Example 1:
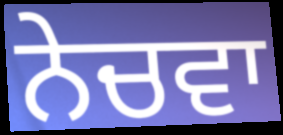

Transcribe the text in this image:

ਨੇਚਵਾ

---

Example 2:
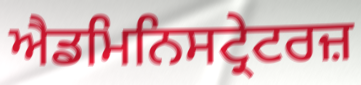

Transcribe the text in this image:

ਐਡਮਿਨਿਸਟ੍ਰੇਟਰਜ਼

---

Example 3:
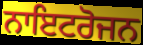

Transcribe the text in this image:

ਨਾਇਟਰੋਜਨ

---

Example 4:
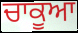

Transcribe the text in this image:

ਚਾਕੂਆ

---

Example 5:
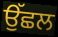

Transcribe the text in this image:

ਉੱਛਲ